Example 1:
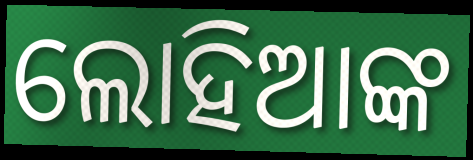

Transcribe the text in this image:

ଲୋହିଆଙ୍କ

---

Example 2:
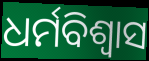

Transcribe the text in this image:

ଧର୍ମବିଶ୍ବାସ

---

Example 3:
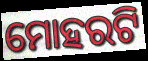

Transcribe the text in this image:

ମୋହରଟି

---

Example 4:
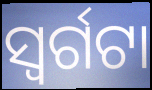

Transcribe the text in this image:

ସ୍ୱର୍ଗଟା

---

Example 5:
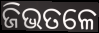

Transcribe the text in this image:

ଜିଭତଳେ